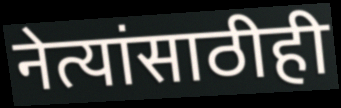
नेत्यांसाठीही